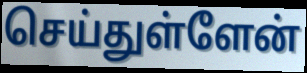
செய்துள்ளேன்